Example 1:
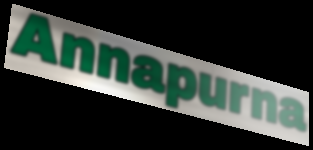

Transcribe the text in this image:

Annapurna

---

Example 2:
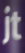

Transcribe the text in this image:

jt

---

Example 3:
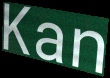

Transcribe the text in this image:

Kan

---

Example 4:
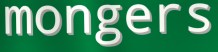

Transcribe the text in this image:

mongers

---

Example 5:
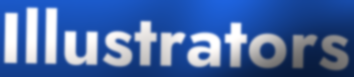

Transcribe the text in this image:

Illustrators